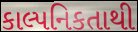
કાલ્પનિકતાથી